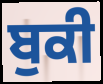
ਬੁਕੀ